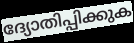
ദ്യോതിപ്പിക്കുക